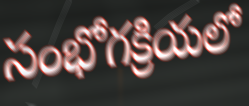
సంభోగక్రియలో